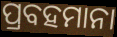
ପ୍ରବହମାନା